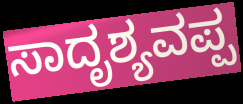
ಸಾದೃಶ್ಯವಪ್ಪ